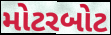
મોટરબોટ